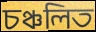
চঞ্চলিত